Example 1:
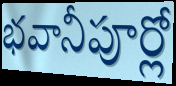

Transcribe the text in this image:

భవానీపూర్లో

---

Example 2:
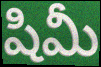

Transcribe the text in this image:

షిమీ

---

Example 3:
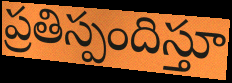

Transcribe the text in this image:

ప్రతిస్పందిస్తూ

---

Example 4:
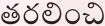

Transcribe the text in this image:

తరలించి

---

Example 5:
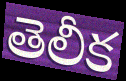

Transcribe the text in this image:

తెలీక